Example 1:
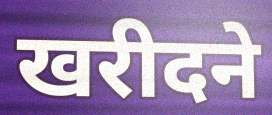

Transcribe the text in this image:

खरीदने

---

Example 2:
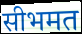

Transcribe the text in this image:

सीभमत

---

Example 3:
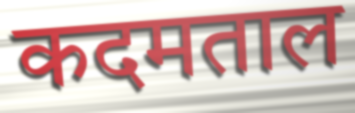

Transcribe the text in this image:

कदमताल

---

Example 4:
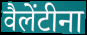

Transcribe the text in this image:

वैलेंटीना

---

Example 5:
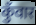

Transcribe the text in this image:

कुँवार